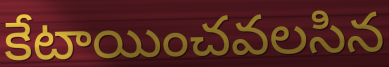
కేటాయించవలసిన